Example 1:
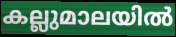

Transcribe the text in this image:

കല്ലുമാലയിൽ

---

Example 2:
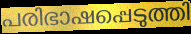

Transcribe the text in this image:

പരിഭാഷപ്പെടുത്തി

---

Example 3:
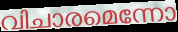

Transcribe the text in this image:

വിചാരമെന്നോ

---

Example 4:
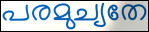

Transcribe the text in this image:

പരമുച്യതേ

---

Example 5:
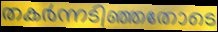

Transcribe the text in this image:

തകർന്നടിഞ്ഞതോടെ